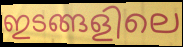
ഇടങ്ങളിലെ